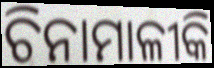
ଚିନାମାଳୀକି